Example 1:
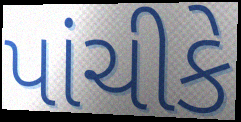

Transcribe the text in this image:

પાંચીકે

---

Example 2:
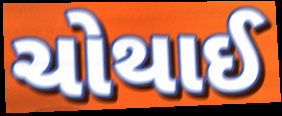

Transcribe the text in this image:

ચોથાઈ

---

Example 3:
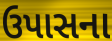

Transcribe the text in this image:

ઉપાસના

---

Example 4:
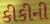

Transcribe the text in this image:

કીકીની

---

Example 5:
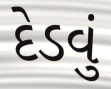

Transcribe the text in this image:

દેડવું